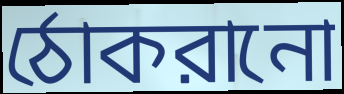
ঠোকরানো